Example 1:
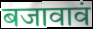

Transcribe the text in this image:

बजावावं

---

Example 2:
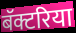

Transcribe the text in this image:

बॅक्टरिया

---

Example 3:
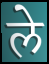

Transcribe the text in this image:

ले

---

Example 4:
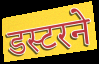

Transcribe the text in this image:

डस्टरने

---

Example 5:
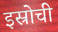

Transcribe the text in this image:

इस्रोची